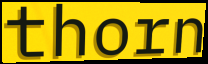
thorn